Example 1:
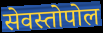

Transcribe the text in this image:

सेवस्तोपोल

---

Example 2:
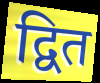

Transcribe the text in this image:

द्वित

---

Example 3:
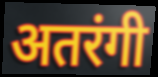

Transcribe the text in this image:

अतरंगी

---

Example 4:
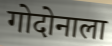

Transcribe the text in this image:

गोदोनाला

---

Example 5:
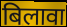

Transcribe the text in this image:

बिलावा